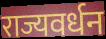
राज्यवर्धन